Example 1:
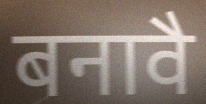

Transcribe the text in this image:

बनावै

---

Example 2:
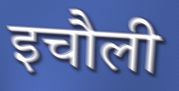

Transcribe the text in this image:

इचौली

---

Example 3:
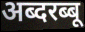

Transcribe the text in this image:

अब्दरब्बू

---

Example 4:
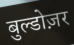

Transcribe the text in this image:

बुल्डोज़र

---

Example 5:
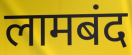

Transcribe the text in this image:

लामबंद